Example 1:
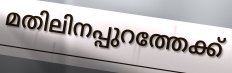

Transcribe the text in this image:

മതിലിനപ്പുറത്തേക്ക്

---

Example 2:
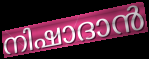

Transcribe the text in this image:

നിഷാദാൻ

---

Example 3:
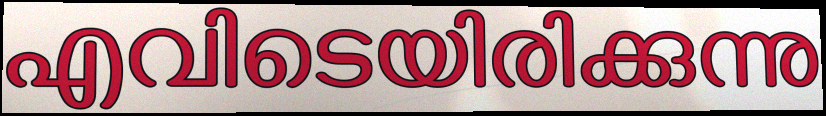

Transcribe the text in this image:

എവിടെയിരിക്കുന്നു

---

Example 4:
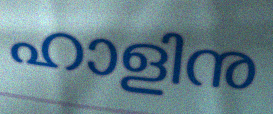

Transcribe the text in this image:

ഹാളിനു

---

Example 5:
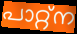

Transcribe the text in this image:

പാറ്റ്ന